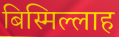
बिस्मिल्‍लाह